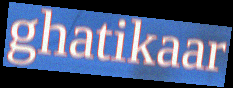
ghatikaar